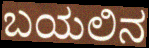
ಬಯಲಿನ